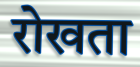
रोखता